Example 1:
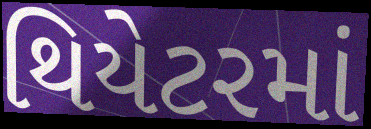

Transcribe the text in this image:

થિયેટરમાં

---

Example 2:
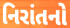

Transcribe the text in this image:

નિરાંતનો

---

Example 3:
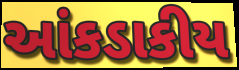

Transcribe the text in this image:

આંકડાકીય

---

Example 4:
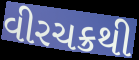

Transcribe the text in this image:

વીરચક્રથી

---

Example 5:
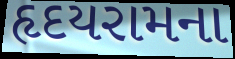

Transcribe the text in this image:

હૃદયરામના